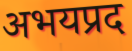
अभयप्रद